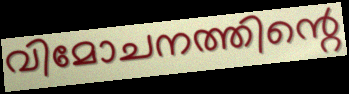
വിമോചനത്തിന്റെ